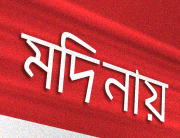
মদিনায়